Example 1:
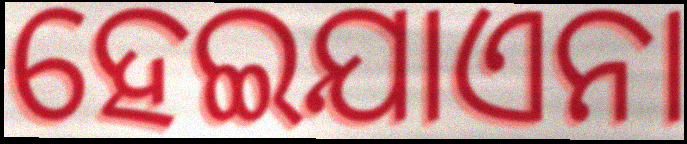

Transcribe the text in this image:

ହେଇଯାଏନା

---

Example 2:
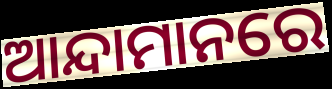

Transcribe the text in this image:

ଆନ୍ଦାମାନରେ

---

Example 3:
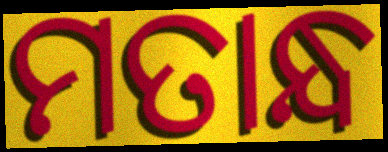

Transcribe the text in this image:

ମତାନ୍ଧ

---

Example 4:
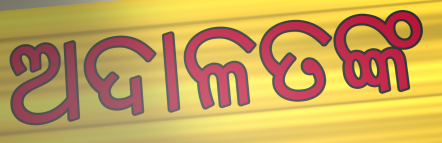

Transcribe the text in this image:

ଅଦାଳତଙ୍କ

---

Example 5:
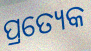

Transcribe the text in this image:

ପ୍ରତ୍ଯେକ